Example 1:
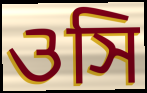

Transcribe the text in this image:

ওসি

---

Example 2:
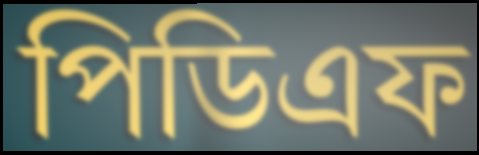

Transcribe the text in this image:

পিডিএফ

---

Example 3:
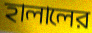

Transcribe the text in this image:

হালালের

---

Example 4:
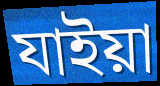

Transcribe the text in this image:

যাইয়া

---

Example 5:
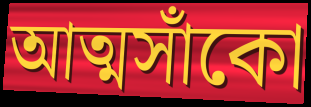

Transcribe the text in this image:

আত্মসাঁকো